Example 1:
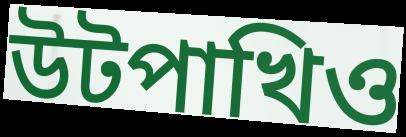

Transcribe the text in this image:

উটপাখিও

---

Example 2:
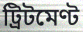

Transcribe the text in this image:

ট্রিটমেণ্ট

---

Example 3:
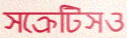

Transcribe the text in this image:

সক্রেটিসও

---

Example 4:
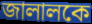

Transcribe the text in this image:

জালালকে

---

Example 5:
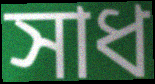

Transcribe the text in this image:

সাধ